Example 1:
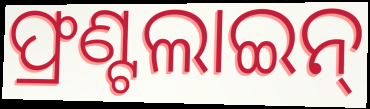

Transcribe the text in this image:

ଫ୍ରଣ୍ଟଲାଇନ୍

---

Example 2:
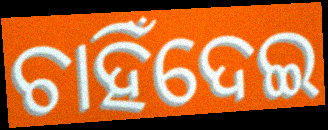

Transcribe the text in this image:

ଚାହିଁଦେଇ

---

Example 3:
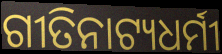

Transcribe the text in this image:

ଗୀତିନାଟ୍ୟଧର୍ମୀ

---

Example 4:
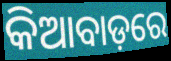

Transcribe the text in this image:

କିଆବାଡ଼ରେ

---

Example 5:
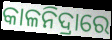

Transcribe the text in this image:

କାଳନିଦ୍ରାରେ